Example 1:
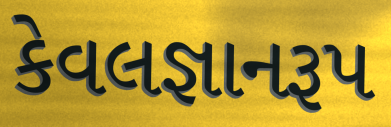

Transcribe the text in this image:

કેવલજ્ઞાનરૂપ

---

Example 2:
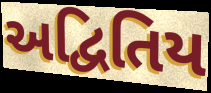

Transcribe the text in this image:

અદ્વિતિય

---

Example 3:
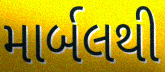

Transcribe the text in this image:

માર્બલથી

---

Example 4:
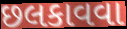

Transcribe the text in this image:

છલકાવવા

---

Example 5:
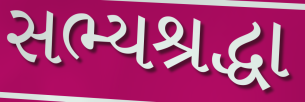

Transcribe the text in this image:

સભ્યશ્રદ્ધા